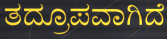
ತದ್ರೂಪವಾಗಿದೆ